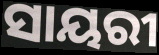
ସାୟରୀ